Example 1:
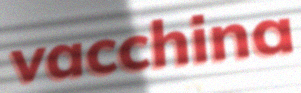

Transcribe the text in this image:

vacchina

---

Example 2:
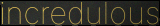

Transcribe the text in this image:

incredulous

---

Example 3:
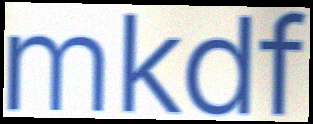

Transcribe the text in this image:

mkdf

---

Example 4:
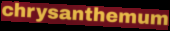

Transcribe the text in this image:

chrysanthemum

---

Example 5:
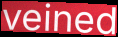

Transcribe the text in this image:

veined